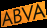
ABVA